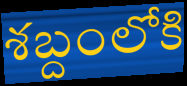
శబ్దంలోకి